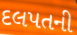
દલપતની